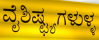
ವೈಶಿಷ್ಟ್ಯಗಳುಳ್ಳ